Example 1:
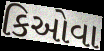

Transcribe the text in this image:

કિઓવા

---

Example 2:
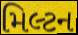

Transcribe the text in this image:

મિલ્ટન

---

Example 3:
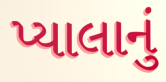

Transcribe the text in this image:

પ્યાલાનું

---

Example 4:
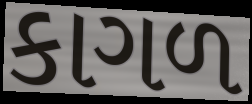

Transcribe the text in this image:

કાગળ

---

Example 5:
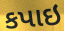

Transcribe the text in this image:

કપાઇ